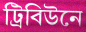
ট্রিবিউনে